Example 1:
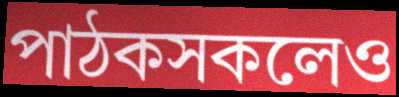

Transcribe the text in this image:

পাঠকসকলেও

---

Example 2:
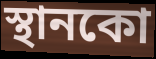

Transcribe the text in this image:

স্থানকো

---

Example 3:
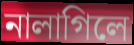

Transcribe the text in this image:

নালাগিলে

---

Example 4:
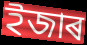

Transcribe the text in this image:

ইজাৰ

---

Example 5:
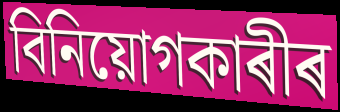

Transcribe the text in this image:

বিনিয়োগকাৰীৰ